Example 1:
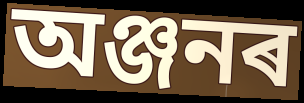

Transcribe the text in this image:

অঞ্জনৰ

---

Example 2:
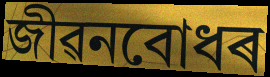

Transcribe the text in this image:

জীৱনবোধৰ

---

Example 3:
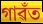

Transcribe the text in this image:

গাৱঁত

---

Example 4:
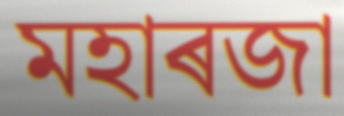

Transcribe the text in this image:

মহাৰজা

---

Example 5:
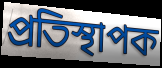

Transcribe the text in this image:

প্ৰতিস্থাপক